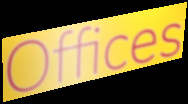
Offices